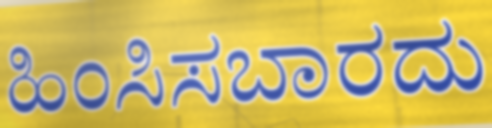
ಹಿಂಸಿಸಬಾರದು